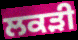
ਲਕੜੀ